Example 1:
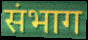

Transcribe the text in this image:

संभाग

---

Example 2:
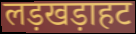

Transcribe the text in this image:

लड़खड़ाहट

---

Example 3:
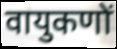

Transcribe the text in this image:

वायुकणों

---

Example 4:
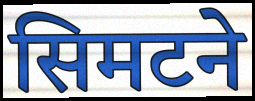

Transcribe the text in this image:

सिमटने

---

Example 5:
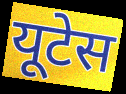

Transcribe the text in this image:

यूटेस